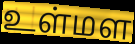
உள்மள